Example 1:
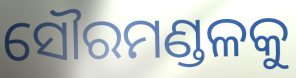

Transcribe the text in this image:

ସୌରମଣ୍ଡଳକୁ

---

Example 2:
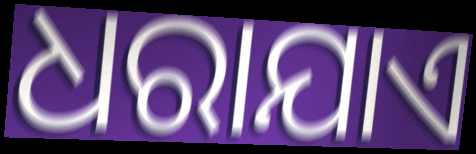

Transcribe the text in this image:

ଧରାଯାଏ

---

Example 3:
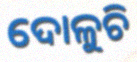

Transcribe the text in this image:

ଦୋଳୁଚି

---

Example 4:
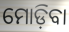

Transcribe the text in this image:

ମୋଡ଼ିବା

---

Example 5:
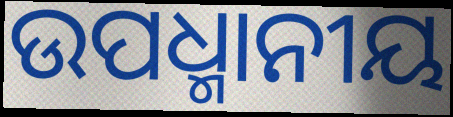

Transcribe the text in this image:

ଉପଧ୍ମାନୀୟ